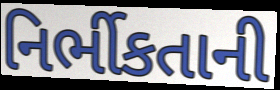
નિર્ભીકતાની